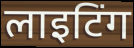
लाइटिंग